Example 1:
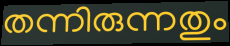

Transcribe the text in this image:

തന്നിരുന്നതും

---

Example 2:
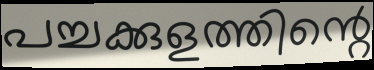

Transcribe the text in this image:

പച്ചക്കുളത്തിന്റെ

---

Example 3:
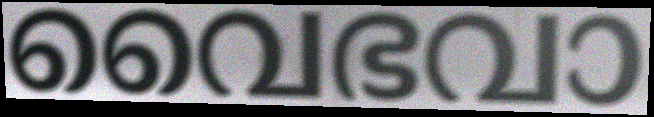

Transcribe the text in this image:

വൈഭവാ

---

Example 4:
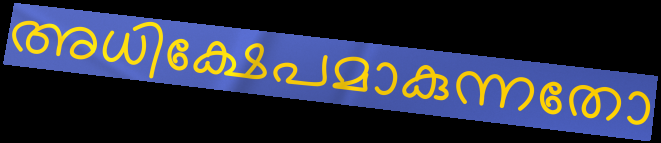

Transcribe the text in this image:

അധിക്ഷേപമാകുന്നതോ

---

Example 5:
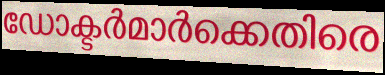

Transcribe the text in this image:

ഡോക്ടർമാർക്കെതിരെ